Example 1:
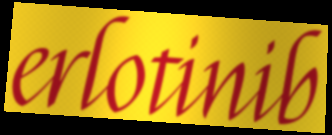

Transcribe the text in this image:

erlotinib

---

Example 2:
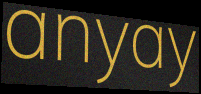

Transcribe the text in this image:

anyay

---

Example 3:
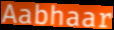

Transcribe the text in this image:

Aabhaar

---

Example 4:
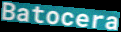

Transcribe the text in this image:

Batocera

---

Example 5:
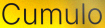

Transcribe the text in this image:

Cumulo